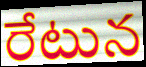
రేటున